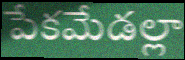
పేకమేడల్లా